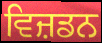
ਵਿਜ਼ਡਨ